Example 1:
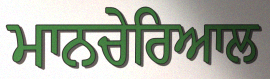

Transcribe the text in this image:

ਮਾਨਚੇਰਿਆਲ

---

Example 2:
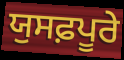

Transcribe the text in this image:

ਯੁਸਫ਼ਪੂਰੇ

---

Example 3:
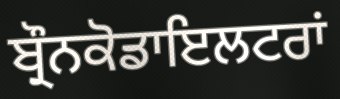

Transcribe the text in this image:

ਬ੍ਰੌਨਕੋਡਾਇਲਟਰਾਂ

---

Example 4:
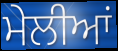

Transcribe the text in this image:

ਮੇਲੀਆਂ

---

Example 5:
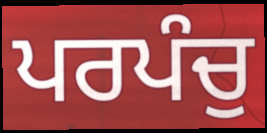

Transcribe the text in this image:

ਪਰਪੰਚੁ